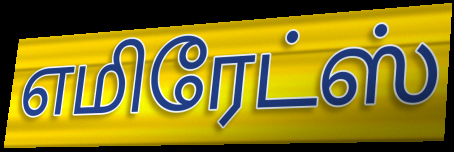
எமிரேட்ஸ்